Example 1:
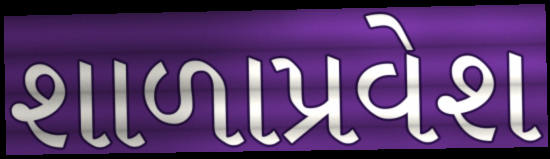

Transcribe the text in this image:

શાળાપ્રવેશ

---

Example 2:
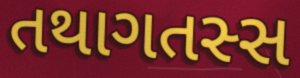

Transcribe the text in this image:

તથાગતસ્સ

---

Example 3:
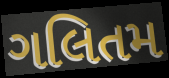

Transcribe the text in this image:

ગલિતમ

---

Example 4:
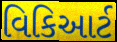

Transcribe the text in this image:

વિકિઆર્ટ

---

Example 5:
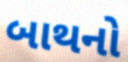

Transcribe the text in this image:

બાથનો